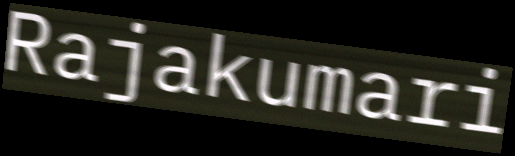
Rajakumari